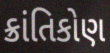
ક્રાંતિકોણ